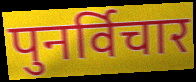
पुनर्विचार